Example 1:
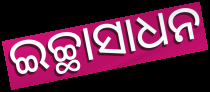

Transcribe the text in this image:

ଇଚ୍ଛାସାଧନ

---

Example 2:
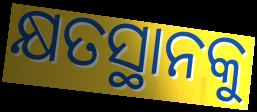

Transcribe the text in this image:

କ୍ଷତସ୍ଥାନକୁ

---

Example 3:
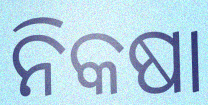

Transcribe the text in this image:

ନିକଷା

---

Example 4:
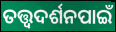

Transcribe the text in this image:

ତତ୍ତ୍ଵଦର୍ଶନପାଇଁ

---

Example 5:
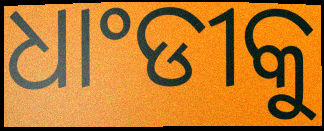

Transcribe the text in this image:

ଧାଂଡୀକୁ